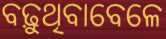
ବଢ଼ୁଥିବାବେଳେ